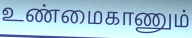
உண்மைகாணும்